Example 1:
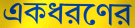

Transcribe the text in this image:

একধরণের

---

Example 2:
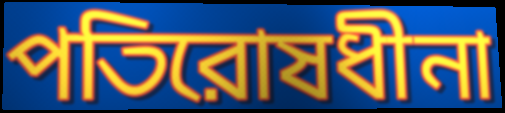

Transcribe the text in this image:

পতিরোষধীনা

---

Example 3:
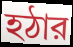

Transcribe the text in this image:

হঠার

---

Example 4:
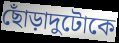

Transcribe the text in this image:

ছোঁড়াদুটোকে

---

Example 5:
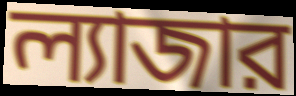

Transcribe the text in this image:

ল্যাজার